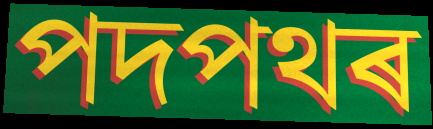
পদপথৰ